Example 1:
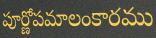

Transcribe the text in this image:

పూర్ణోపమాలంకారము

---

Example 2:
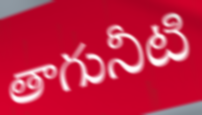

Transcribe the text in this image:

తాగునీటి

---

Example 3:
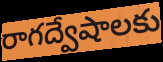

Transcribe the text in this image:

రాగద్వేషాలకు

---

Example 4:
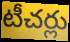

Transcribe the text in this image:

టీచర్లు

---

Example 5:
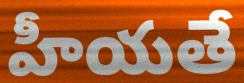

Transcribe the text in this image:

హీయతే